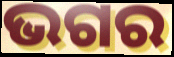
ଭଗର